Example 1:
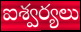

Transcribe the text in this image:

ఐశ్వర్యలు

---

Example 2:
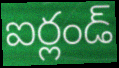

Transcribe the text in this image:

ఐర్లండ్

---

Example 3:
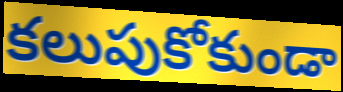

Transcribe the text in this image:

కలుపుకోకుండా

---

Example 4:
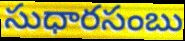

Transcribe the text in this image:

సుధారసంబు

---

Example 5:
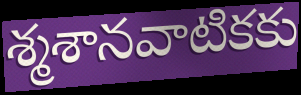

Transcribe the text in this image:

శ్మశానవాటికకు